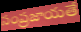
సంప్రజాయతే